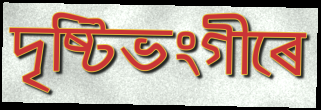
দৃষ্টিভংগীৰে